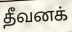
தீவனக்